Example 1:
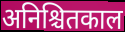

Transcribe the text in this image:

अनिश्चितकाल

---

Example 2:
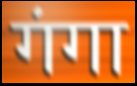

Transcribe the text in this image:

गंगा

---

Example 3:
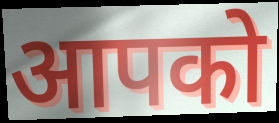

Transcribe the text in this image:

आपको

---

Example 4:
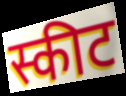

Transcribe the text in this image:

स्कीट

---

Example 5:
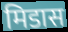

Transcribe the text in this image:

मिडास